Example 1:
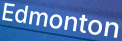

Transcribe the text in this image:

Edmonton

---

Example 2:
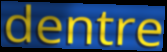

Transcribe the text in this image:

dentre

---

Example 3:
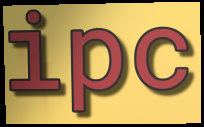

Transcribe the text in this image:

ipc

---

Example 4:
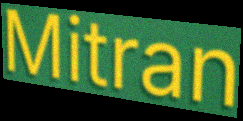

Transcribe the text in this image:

Mitran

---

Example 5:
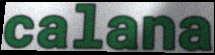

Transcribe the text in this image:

calana